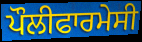
ਪੌਲੀਫਾਰਮੇਸੀ